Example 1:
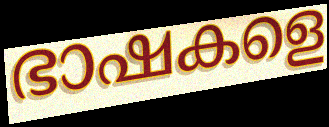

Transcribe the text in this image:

ഭാഷകളെ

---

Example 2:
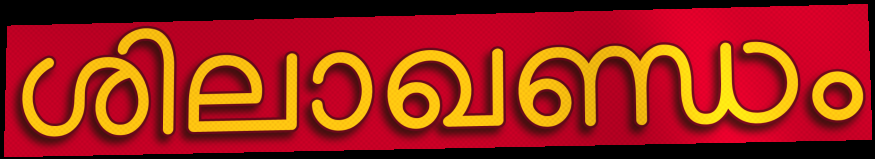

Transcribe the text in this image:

ശിലാഖണ്ഡം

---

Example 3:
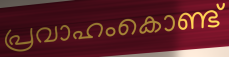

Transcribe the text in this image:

പ്രവാഹംകൊണ്ട്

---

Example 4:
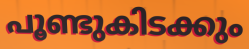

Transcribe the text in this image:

പൂണ്ടുകിടക്കും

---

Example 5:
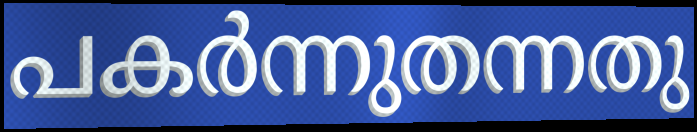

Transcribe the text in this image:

പകർന്നുതന്നതു